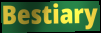
Bestiary